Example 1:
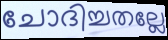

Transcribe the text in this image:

ചോദിച്ചതല്ലേ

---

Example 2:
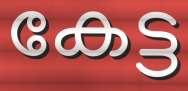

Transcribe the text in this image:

കേട്ട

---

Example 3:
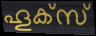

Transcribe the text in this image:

ഹൂക്സ്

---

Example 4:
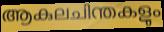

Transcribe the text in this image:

ആകുലചിന്തകളും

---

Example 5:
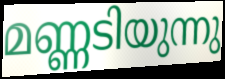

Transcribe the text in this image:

മണ്ണടിയുന്നു